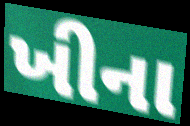
ખીના